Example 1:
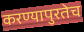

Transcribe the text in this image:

करण्यापुरतेच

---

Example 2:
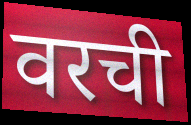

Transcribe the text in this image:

वरची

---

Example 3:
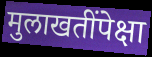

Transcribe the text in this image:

मुलाखतींपेक्षा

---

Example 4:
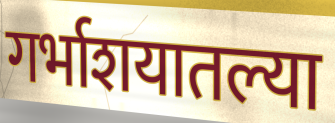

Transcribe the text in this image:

गर्भाशयातल्या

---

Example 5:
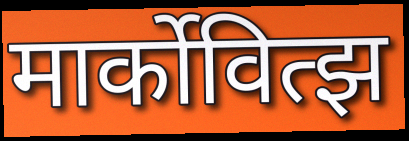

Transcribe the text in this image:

मार्कोवित्झ